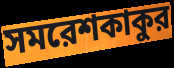
সমরেশকাকুর